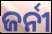
ଜର୍ନୀ